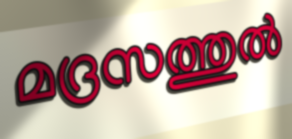
മദ്രസത്തുൽ